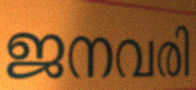
ജനവരി